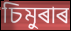
চিমুৰাৰ